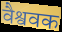
वैश्ववक